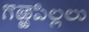
గొఱ్ఱెపిల్లలు